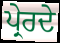
ਪ੍ਰੇਰਦੇ